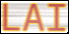
LAI